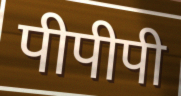
पीपीपी